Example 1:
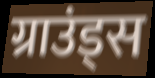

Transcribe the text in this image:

ग्राउंड्स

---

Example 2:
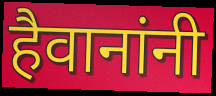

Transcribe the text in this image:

हैवानांनी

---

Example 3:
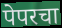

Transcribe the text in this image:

पेपरचा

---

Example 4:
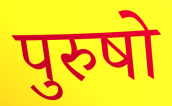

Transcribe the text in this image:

पुरुषो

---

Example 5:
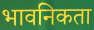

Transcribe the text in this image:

भावनिकता